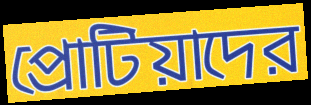
প্রোটিয়াদের